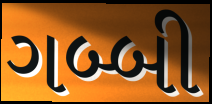
ગબ્બી